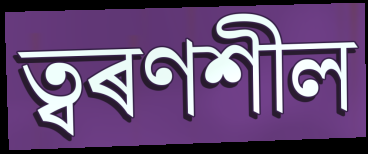
ত্বৰণশীল